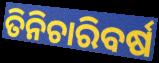
ତିନିଚାରିବର୍ଷ